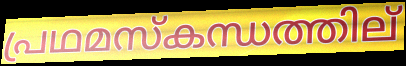
പ്രഥമസ്കന്ധത്തില്